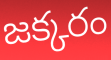
జక్కరం